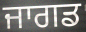
ਜਾਗਡ